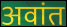
अवांत